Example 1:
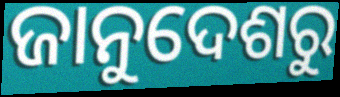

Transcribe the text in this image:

ଜାନୁଦେଶରୁ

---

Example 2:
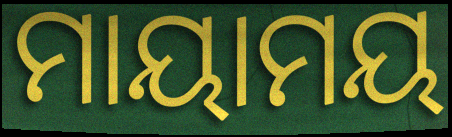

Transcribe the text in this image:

ମାୟାମୟ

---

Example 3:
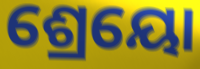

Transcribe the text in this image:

ଶ୍ରେୟୋ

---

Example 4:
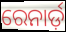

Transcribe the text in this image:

ରେନାର୍ଡ଼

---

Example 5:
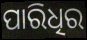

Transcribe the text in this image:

ପାରିଧିର